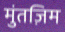
मुंतज़िम